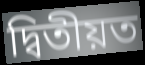
দ্বিতীয়ত